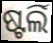
ଷ୍ଟର୍ଲି